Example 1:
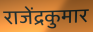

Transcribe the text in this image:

राजेंद्रकुमार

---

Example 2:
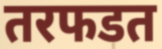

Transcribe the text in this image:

तरफडत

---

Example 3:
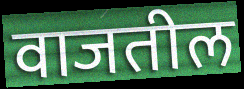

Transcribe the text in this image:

वाजतील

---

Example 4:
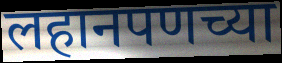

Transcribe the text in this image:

लहानपणच्या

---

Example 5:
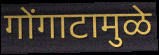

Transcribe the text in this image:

गोंगाटामुळे